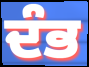
ਦੰਭ